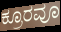
ಕ್ರೂರವೂ